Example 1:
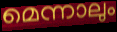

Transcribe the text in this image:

മെന്നാലും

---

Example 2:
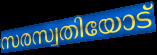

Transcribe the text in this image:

സരസ്വതിയോട്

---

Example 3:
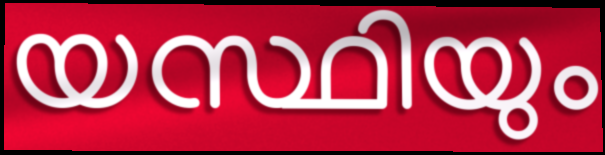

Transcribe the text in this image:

യസ്ഥിയും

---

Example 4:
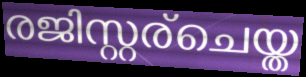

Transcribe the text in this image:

രജിസ്റ്റര്ചെയ്ത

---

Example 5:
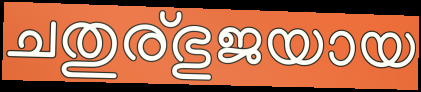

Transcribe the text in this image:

ചതുര്ഭുജയായ